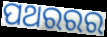
ପଥରରର